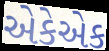
એકેએક